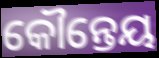
କୌନ୍ତେୟ